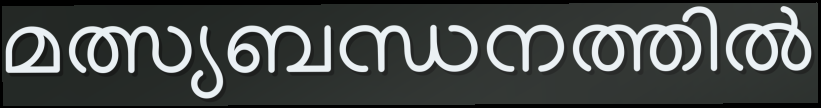
മത്സ്യബന്ധനത്തിൽ